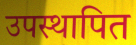
उपस्थापित